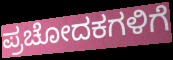
ಪ್ರಚೋದಕಗಳಿಗೆ